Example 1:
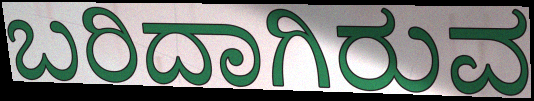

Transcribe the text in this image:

ಬರಿದಾಗಿರುವ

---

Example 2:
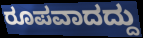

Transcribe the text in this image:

ರೂಪವಾದದ್ದು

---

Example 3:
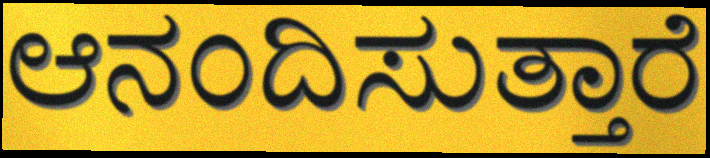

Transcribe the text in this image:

ಆನಂದಿಸುತ್ತಾರೆ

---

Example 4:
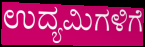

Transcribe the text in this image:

ಉದ್ಯಮಿಗಳಿಗೆ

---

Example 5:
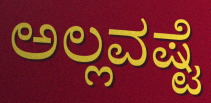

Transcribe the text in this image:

ಅಲ್ಲವಷ್ಟೆ